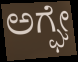
ಅಗ್ಘೇ